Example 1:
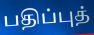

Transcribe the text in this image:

பதிப்புத்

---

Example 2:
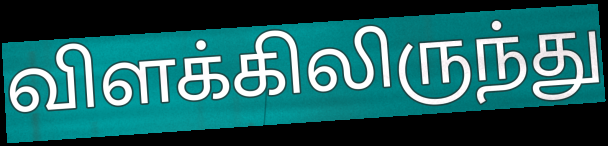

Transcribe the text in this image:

விளக்கிலிருந்து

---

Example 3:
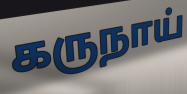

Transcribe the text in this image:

கருநாய்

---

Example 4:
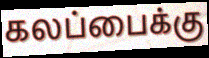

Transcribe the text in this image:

கலப்பைக்கு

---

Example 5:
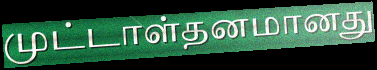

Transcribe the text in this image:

முட்டாள்தனமானது